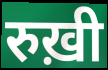
रुख़ी